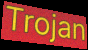
Trojan